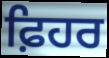
ਫ਼ਿਹਰ